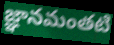
జ్ఞానమంతటి